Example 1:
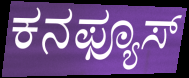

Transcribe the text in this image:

ಕನಫ್ಯೂಸ್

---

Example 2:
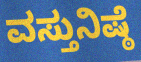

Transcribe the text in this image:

ವಸ್ತುನಿಷ್ಠೆ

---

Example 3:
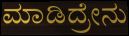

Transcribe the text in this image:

ಮಾಡಿದ್ರೇನು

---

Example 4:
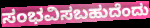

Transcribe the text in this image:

ಸಂಭವಿಸಬಹುದೆಂದು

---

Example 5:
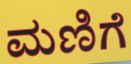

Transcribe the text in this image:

ಮಣಿಗೆ